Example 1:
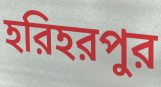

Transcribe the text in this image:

হরিহরপুর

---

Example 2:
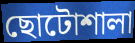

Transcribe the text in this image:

ছোটোশালা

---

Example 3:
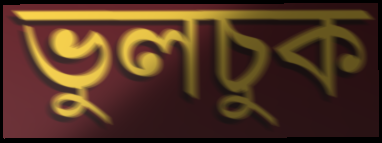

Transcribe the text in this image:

ভুলচুক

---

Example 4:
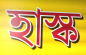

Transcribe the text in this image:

হাস্ক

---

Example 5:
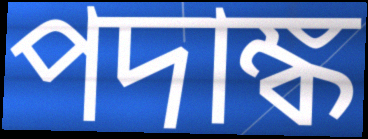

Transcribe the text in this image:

পদাঙ্ক